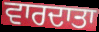
ਵਾਰਦਾਤਾ